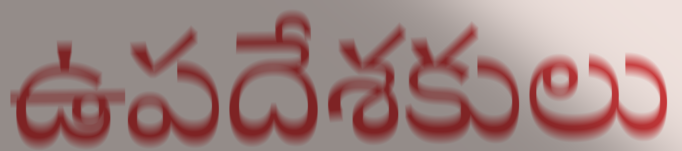
ఉపదేశకులు